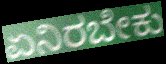
ಏನಿರಬೇಕು